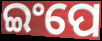
ଇଂପେ